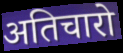
अतिचारो